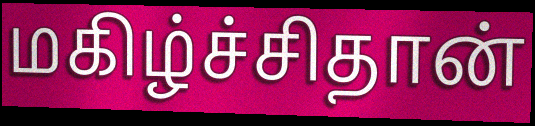
மகிழ்ச்சிதான்